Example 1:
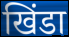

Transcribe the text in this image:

खिंडा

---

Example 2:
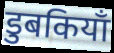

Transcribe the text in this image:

डुबकियाँ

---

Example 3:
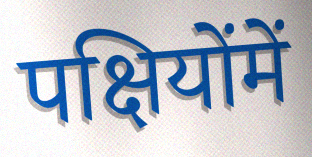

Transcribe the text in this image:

पक्षियोंमें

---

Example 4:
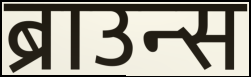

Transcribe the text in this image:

ब्राउन्स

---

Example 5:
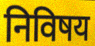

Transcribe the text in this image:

निविषय